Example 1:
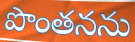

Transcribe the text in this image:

పొంతనను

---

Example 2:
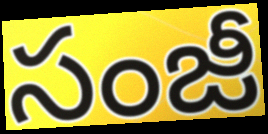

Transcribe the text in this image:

సంజీ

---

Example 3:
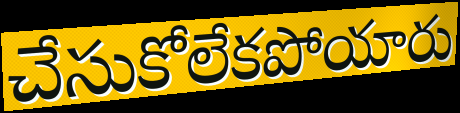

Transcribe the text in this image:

చేసుకోలేకపోయారు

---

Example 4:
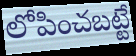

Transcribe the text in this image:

లోపించబట్టే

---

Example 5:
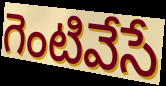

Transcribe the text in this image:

గెంటివేసే